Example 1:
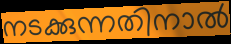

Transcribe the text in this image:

നടക്കുന്നതിനാൽ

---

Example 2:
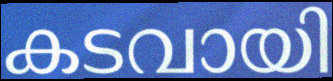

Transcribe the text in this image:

കടവായി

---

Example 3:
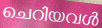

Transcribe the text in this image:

ചെറിയവൾ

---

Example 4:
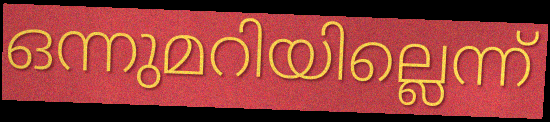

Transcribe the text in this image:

ഒന്നുമറിയില്ലെന്ന്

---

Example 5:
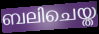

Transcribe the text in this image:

ബലിചെയ്ത